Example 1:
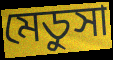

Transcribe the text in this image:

মেডুসা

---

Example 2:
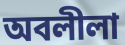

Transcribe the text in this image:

অবলীলা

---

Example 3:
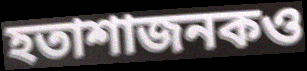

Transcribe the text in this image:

হতাশাজনকও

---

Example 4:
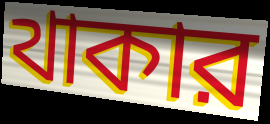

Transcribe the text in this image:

থাকার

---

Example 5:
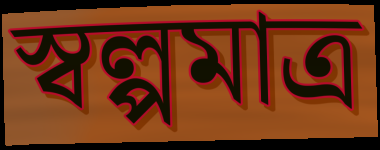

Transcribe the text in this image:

স্বল্পমাত্র